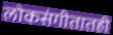
लोकसंगीतातही